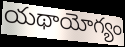
యథాయోగ్యం